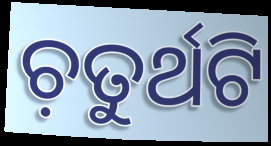
ଚ଼ତୁର୍ଥଟି